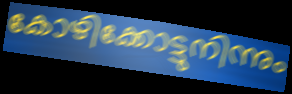
കോഴിക്കോട്ടുനിന്നും